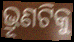
ଭ୍ରୂଣଟିକୁ